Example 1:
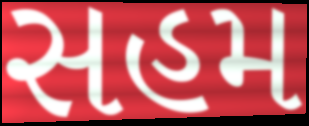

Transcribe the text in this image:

સહમ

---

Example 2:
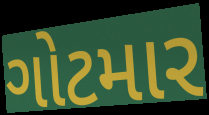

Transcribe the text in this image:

ગોટમાર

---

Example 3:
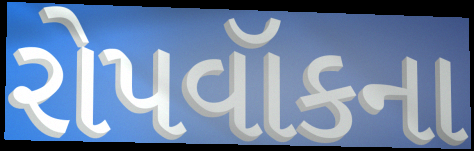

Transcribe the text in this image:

રોપવૉકના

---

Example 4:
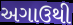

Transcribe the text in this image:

અગાઉથી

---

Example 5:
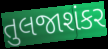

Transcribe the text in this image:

તુલજાશંકર